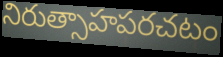
నిరుత్సాహపరచటం